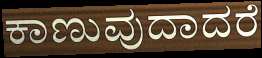
ಕಾಣುವುದಾದರೆ